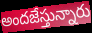
అందజేస్తున్నారు